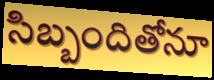
సిబ్బందితోనూ